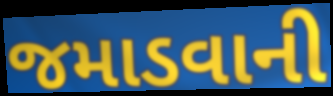
જમાડવાની